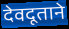
देवदूताने